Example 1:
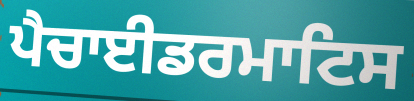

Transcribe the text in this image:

ਪੈਚਾਈਡਰਮਾਟਿਸ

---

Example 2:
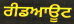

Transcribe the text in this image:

ਰੀਡਆਊਟ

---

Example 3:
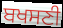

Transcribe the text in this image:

ਬਖਸਣੀ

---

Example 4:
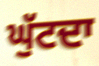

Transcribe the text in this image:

ਘੁੱਟਦਾ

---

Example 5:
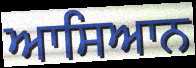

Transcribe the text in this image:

ਆਸਿਆਨ